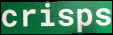
crisps